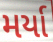
મર્યા